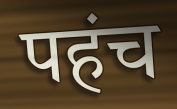
पहंच